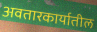
अवतारकार्यातील